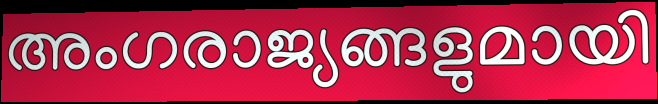
അംഗരാജ്യങ്ങളുമായി